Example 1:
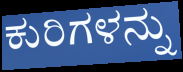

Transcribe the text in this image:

ಕುರಿಗಳನ್ನು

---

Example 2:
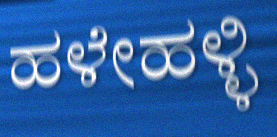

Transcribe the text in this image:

ಹಳೇಹಳ್ಳಿ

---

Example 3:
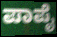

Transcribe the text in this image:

ಪಾಪೈ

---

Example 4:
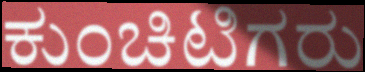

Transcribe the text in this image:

ಕುಂಚಿಟಿಗರು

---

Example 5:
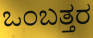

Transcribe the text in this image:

ಒಂಬತ್ತರ